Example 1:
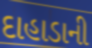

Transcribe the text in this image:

દાહાડાની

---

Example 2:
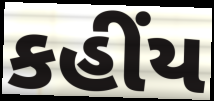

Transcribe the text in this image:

કહીંય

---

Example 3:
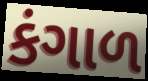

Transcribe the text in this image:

કંગાળ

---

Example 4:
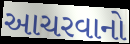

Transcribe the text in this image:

આચરવાનો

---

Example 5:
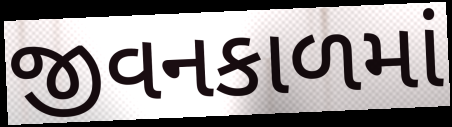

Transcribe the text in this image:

જીવનકાળમાં